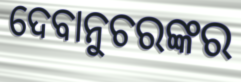
ଦେବାନୁଚରଙ୍କର